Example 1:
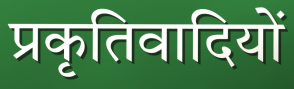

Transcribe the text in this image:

प्रकृतिवादियों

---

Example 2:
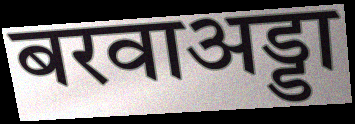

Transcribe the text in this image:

बरवाअड्डा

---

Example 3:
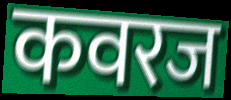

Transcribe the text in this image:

कवरज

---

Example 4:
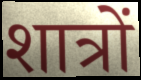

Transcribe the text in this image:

शात्रों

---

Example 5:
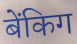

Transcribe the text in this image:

बेंकिग